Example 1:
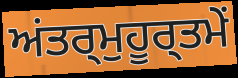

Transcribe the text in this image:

ਅਂਤਰ੍ਮੁਹੂਰ੍ਤਮੇਂ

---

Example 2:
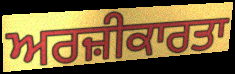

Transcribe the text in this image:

ਅਰਜ਼ੀਕਾਰਤਾ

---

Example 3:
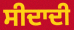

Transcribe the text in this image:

ਸੀਦਾਦੀ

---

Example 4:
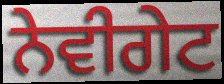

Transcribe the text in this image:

ਨੇਵੀਗੇਟ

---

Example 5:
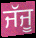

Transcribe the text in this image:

ਜੱਜੂ